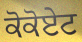
ਕੋਕੋਏਟ